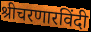
श्रीचरणारविंदी